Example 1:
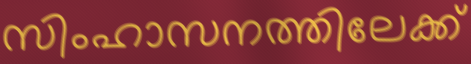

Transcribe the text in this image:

സിംഹാസനത്തിലേക്ക്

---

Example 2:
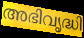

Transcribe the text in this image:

അഭിവൃദ്ധി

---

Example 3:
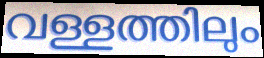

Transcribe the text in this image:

വള്ളത്തിലും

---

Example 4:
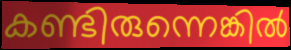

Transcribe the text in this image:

കണ്ടിരുന്നെങ്കിൽ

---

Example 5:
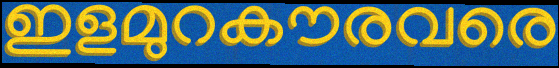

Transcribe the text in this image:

ഇളമുറകൗരവരെ